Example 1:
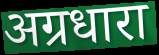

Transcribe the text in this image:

अग्रधारा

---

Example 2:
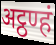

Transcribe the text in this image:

अट्ठण्हं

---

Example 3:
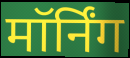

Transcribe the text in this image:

मॉर्निंग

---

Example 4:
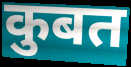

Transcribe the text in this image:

कुबत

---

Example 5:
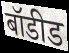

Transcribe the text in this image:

बॉडीड